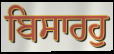
ਬਿਸਾਰਹੁ